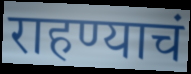
राहण्याचं